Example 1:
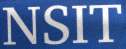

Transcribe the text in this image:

NSIT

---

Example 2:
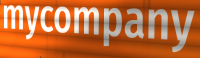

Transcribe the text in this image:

mycompany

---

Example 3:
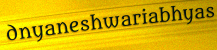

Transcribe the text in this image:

dnyaneshwariabhyas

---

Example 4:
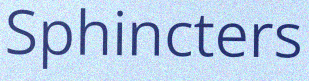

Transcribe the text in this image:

Sphincters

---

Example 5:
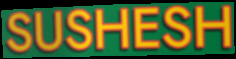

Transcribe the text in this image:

SUSHESH